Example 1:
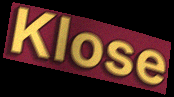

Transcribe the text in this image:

Klose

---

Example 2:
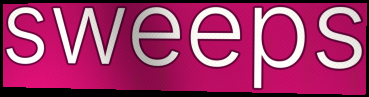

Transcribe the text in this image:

sweeps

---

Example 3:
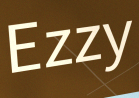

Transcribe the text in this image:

Ezzy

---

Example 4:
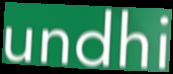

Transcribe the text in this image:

undhi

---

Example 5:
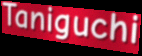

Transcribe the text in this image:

Taniguchi